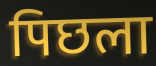
पिछला